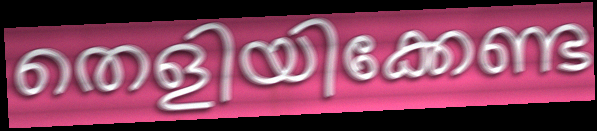
തെളിയിക്കേണ്ട